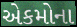
એકમોના